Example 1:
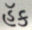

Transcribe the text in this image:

હૅક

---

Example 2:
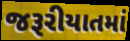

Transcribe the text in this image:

જરૂરીયાતમાં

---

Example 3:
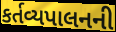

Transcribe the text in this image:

કર્તવ્યપાલનની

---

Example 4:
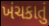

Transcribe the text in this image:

ખંચકાતું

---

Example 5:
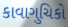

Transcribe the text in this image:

કાવાગુચિકો